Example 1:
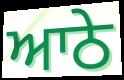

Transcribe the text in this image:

ਆਠੇ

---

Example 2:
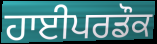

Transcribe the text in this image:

ਹਾਈਪਰਡੌਕ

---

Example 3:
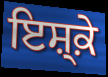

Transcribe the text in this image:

ਇਸ਼੍ਕ਼ੇ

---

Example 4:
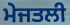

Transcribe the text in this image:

ਮੇਜਤਲੀ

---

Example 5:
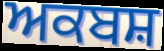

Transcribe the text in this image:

ਅਕਬਸ਼